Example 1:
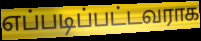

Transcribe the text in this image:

எப்படிப்பட்டவராக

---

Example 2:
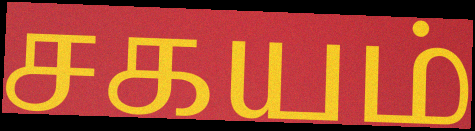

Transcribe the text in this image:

சகயம்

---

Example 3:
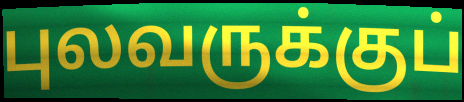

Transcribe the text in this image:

புலவருக்குப்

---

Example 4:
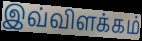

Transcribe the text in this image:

இவ்விளக்கம்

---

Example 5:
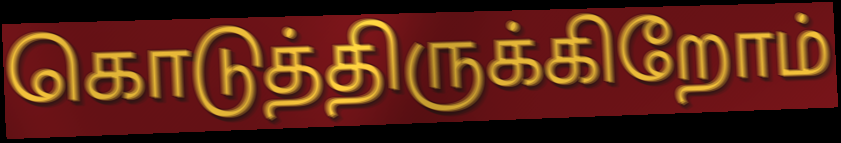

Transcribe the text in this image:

கொடுத்திருக்கிறோம்